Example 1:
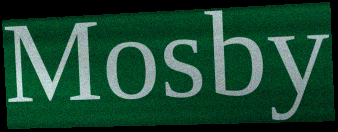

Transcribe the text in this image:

Mosby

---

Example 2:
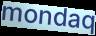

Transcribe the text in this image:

mondaq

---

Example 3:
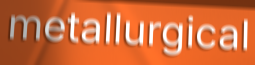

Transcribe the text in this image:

metallurgical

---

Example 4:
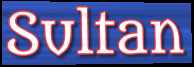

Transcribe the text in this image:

Sultan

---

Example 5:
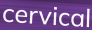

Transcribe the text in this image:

cervical